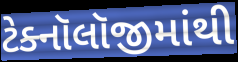
ટેક્નૉલૉજીમાંથી